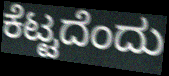
ಕೆಟ್ಟದೆಂದು